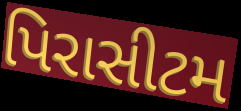
પિરાસીટમ